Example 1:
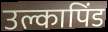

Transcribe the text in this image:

उल्कापिंड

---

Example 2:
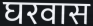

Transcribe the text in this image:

घरवास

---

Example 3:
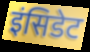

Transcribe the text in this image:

इंसिडेट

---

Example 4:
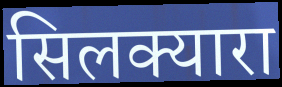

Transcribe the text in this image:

सिलक्यारा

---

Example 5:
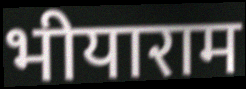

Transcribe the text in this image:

भीयाराम